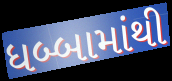
ધબ્બામાંથી